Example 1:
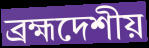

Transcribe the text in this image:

ব্রহ্মদেশীয়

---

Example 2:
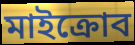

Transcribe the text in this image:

মাইক্রোব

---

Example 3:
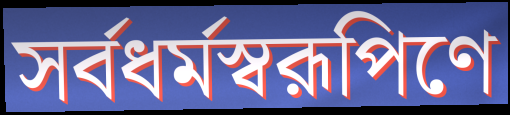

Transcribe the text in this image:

সর্বধর্মস্বরূপিণে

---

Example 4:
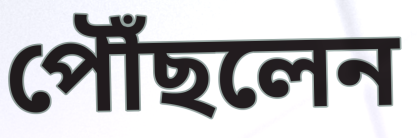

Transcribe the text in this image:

পৌঁছলেন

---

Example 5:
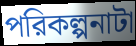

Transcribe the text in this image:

পরিকল্পনাটা